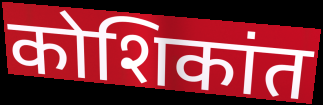
कोशिकांत